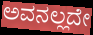
ಅವನಲ್ಲದೇ